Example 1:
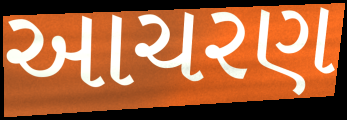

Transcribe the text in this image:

આચરણ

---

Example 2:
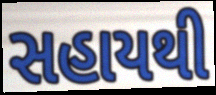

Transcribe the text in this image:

સહાયથી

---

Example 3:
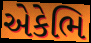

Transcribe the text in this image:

એકેભિ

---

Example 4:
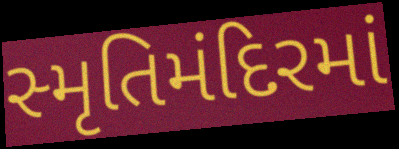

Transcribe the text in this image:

સ્મૃતિમંદિરમાં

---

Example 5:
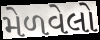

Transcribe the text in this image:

મેળવેલો